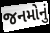
જનમોનું